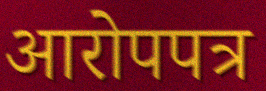
आरोपपत्र